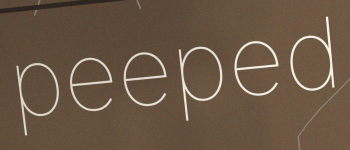
peeped